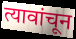
त्यावांचून